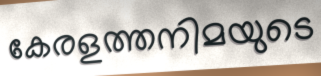
കേരളത്തനിമയുടെ